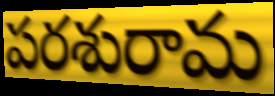
పరశురామ